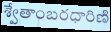
శ్వేతాంబరధారిణి